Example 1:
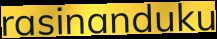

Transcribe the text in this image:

rasinanduku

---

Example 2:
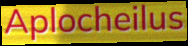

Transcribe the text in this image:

Aplocheilus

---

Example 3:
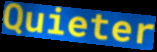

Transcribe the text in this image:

Quieter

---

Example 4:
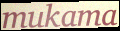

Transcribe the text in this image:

mukama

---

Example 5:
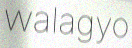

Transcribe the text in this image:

walagyo